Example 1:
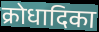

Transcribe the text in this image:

क्रोधादिका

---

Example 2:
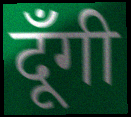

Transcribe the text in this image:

दूँगी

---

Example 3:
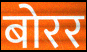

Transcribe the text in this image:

बोरर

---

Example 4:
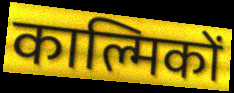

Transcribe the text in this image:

काल्मिकों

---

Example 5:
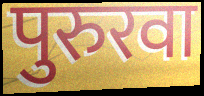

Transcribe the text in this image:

पुरुरवा